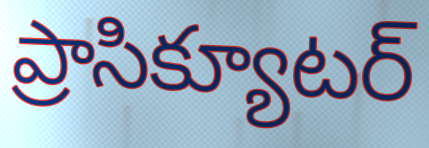
ప్రాసిక్యూటర్